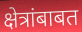
क्षेत्रांबाबत